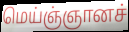
மெய்ஞ்ஞானச்